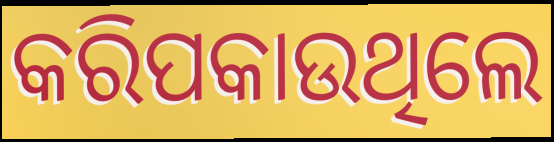
କରିପକାଉଥିଲେ